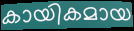
കായികമായ